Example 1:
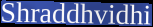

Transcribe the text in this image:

Shraddhvidhi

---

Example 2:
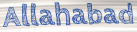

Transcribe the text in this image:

Allahabad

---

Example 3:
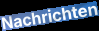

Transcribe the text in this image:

Nachrichten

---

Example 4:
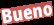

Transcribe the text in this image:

Bueno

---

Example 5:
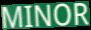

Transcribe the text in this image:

MINOR